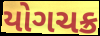
યોગચક્ર